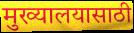
मुख्यालयासाठी